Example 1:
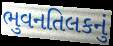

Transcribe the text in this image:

ભુવનતિલકનું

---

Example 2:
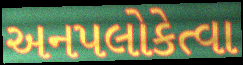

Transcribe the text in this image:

અનપલોકેત્વા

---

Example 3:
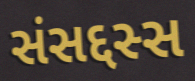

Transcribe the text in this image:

સંસદ્દસ્સ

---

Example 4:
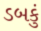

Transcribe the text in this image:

ડબકું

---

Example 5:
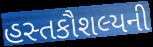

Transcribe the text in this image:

હસ્તકૌશલ્યની